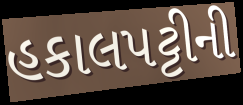
હકાલપટ્ટીની